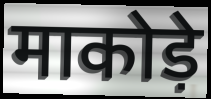
माकोड़े